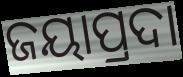
ଜୟାପ୍ରଦା